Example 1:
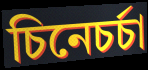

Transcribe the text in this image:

চিনেচৰ্চা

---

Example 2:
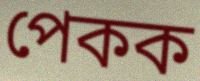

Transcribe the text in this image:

পেকক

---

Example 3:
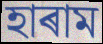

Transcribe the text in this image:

হাৰাম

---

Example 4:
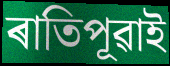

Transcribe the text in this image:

ৰাতিপূৱাই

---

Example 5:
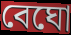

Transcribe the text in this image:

বেঘো